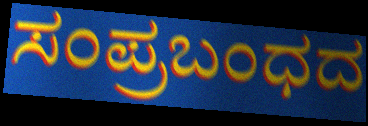
ಸಂಪ್ರಬಂಧದ